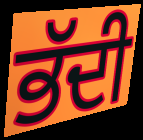
ਭੱਦੀ